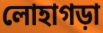
লোহাগড়া